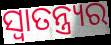
ସ୍ୱାତନ୍ତ୍ର୍ୟର